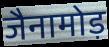
जैनामोड़